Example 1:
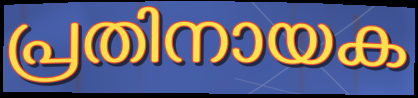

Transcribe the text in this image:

പ്രതിനായക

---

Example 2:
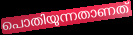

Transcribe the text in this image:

പൊതിയുന്നതാണത്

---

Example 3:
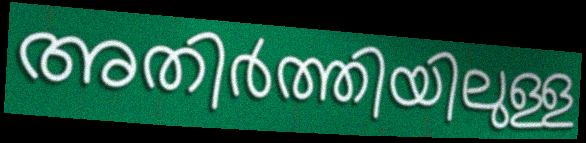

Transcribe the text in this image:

അതിർത്തിയിലുള്ള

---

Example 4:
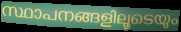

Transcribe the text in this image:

സ്ഥാപനങ്ങളിലൂടെയും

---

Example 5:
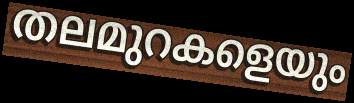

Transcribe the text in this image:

തലമുറകളെയും